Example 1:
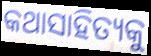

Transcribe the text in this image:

କଥାସାହିତ୍ୟକୁ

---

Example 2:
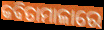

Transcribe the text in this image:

କବିତାମାଳାରେ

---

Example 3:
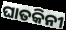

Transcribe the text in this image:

ଘାତକିନୀ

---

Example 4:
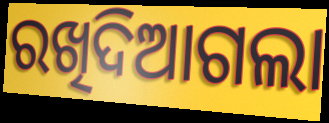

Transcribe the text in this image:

ରଖିଦିଆଗଲା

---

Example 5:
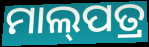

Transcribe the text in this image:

ମାଲ୍‌ପତ୍ର